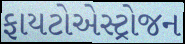
ફાયટોએસ્ટ્રોજન